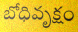
బోధివృక్షం